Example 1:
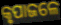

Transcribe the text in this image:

କୃପାଜଳେ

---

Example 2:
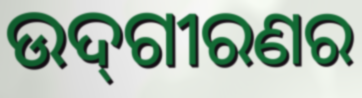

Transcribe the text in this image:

ଉଦ୍‌ଗୀରଣର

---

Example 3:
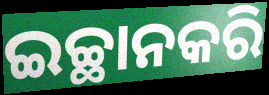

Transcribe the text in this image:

ଇଚ୍ଛାନକରି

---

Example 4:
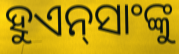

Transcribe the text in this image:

ହୁଏନ୍‌ସାଂଙ୍କୁ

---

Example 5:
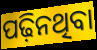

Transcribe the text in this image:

ପଢ଼ିନଥିବା